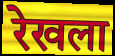
रेखला